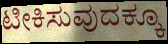
ಟೀಕಿಸುವುದಕ್ಕೂ